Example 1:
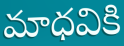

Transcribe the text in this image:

మాధవికి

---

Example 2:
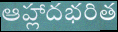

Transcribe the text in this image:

ఆహ్లాదభరిత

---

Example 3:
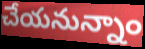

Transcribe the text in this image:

చేయనున్నాం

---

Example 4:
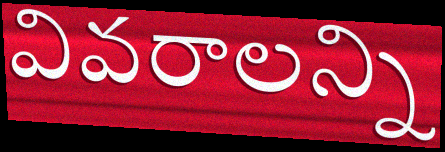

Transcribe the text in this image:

వివరాలన్ని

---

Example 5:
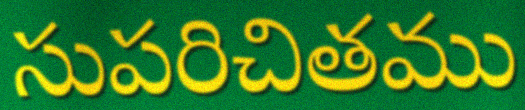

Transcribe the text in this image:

సుపరిచితము